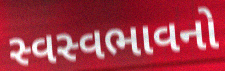
સ્વસ્વભાવનો